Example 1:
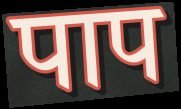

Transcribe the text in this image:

पाप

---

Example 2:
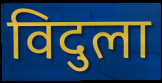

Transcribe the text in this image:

विदुला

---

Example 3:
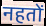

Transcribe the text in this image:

नहतों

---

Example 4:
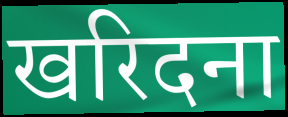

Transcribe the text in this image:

खरिदना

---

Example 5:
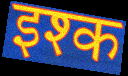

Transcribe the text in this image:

इश्क